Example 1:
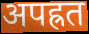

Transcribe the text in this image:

अपह्रत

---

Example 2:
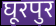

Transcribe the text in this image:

घूरपुर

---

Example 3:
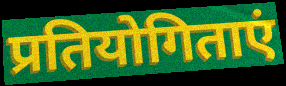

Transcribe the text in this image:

प्रतियोगिताएं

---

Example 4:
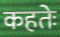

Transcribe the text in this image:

कहतेः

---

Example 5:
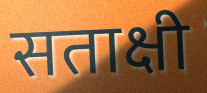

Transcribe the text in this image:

सताक्षी